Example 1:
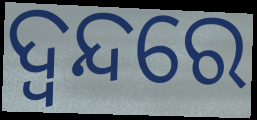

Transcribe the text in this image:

ଦ୍ୱନ୍ଦରେ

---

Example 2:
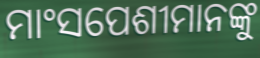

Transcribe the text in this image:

ମାଂସପେଶୀମାନଙ୍କୁ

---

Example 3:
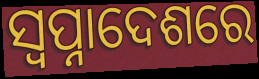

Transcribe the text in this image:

ସ୍ଵପ୍ନାଦେଶରେ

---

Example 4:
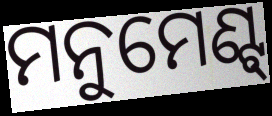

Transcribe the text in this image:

ମନୁମେଣ୍ଟ୍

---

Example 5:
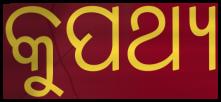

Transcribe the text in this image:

କୁପଥ୍ୟ